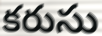
కరుసు